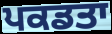
ਪਕਡਤਾ